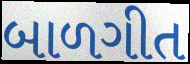
બાળગીત